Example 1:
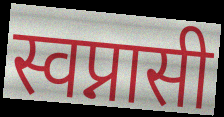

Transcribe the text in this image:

स्वप्नासी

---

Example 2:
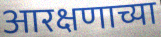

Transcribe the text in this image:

आरक्षणाच्या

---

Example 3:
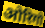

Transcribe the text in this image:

ओरिगो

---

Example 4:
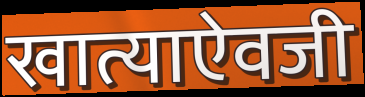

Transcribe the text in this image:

खात्याऐवजी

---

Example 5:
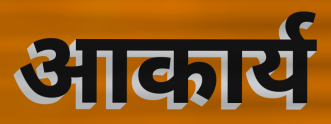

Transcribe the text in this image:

आकार्य